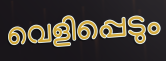
വെളിപ്പെടും